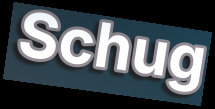
Schug